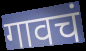
गावचं